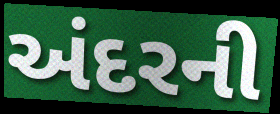
અંદરની